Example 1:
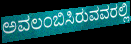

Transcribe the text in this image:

ಅವಲಂಬಿಸಿರುವವರಲ್ಲಿ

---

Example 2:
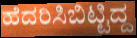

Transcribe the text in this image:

ಹೆದರಿಸಿಬಿಟ್ಟಿದ್ದ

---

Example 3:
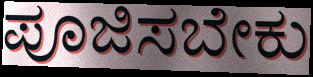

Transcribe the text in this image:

ಪೂಜಿಸಬೇಕು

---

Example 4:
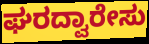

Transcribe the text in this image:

ಘರದ್ವಾರೇಸು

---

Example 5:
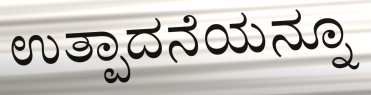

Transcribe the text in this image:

ಉತ್ಪಾದನೆಯನ್ನೂ